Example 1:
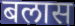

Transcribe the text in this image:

बलास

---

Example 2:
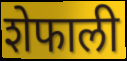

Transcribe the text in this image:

शेफाली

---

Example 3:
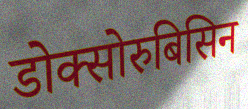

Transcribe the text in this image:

डोक्सोरुबिसिन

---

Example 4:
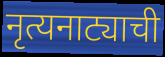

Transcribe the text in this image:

नृत्यनाट्याची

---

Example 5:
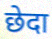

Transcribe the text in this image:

छेदा